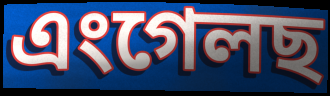
এংগেলছ